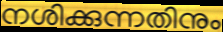
നശിക്കുന്നതിനും